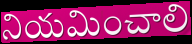
నియమించాలి